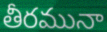
తీరమునా